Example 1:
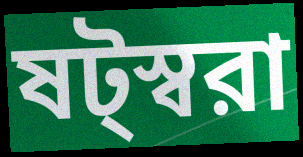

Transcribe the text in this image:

ষট্স্বরা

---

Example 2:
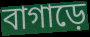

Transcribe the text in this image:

বাগাড়ে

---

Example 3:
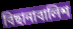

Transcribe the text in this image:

বিছানাবালিশ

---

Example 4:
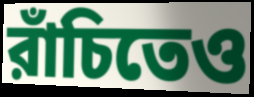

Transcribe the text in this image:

রাঁচিতেও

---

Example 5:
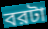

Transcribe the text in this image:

বরটা